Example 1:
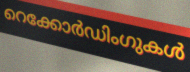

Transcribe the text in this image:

റെക്കോർഡിംഗുകൾ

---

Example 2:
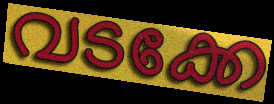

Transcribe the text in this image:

വടക്കേ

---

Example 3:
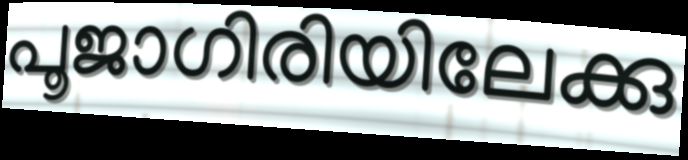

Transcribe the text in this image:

പൂജാഗിരിയിലേക്കു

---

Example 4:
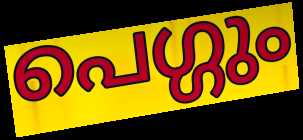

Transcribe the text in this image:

പെഗ്ഗും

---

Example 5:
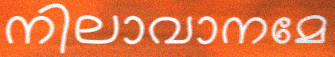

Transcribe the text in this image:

നിലാവാനമേ